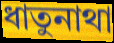
ধাতুনাথা